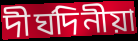
দীৰ্ঘদিনীয়া